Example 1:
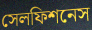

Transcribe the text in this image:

সেলফিশনেস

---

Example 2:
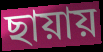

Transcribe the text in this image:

ছায়ায়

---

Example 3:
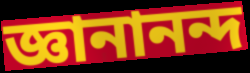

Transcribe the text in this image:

জ্ঞানানন্দ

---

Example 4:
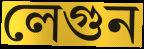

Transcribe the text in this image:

লেগুন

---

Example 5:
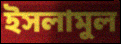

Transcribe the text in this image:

ইসলামুল